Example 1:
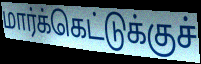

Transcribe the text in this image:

மார்க்கெட்டுக்குச்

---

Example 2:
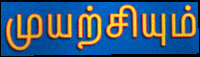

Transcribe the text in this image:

முயற்சியும்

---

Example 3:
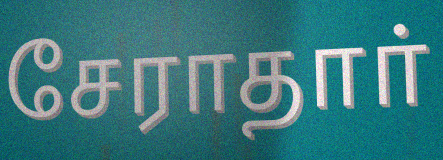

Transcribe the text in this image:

சேராதார்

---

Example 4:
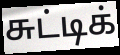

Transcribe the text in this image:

சுட்டிக்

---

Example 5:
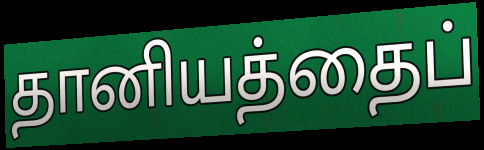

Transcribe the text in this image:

தானியத்தைப்